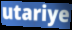
utariye